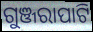
ଗୁଞ୍ଜରାପାଟି